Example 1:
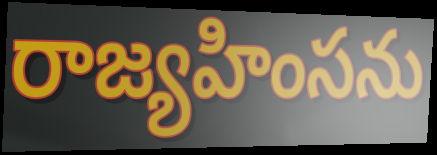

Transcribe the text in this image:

రాజ్యహింసను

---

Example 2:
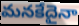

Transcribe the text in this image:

మనకేదైనా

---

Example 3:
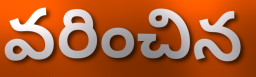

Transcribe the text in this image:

వరించిన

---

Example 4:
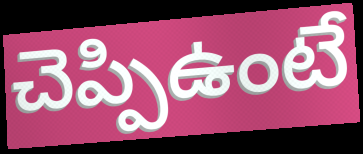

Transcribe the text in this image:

చెప్పిఉంటే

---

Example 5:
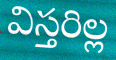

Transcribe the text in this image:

విస్తరిల్ల